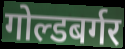
गोल्डबर्गर